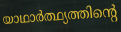
യാഥാർത്ഥ്യത്തിന്റെ